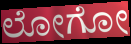
ಲೋಗೋ